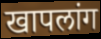
खापलांग